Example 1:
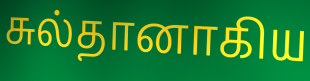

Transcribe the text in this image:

சுல்தானாகிய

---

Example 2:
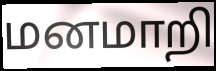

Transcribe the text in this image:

மனமாறி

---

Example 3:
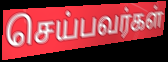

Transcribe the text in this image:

செய்பவர்கள்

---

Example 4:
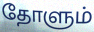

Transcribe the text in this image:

தோளும்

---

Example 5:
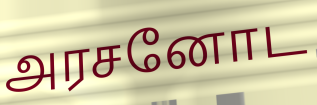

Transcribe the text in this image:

அரசனோட